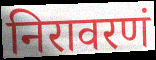
निरावरणं